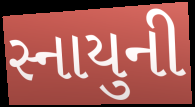
સ્નાયુની